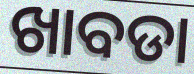
ଖାବଡା